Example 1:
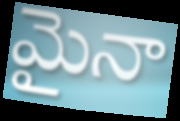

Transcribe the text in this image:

మైనా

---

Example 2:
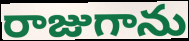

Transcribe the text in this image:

రాజుగాను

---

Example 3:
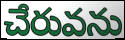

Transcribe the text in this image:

చేరువను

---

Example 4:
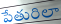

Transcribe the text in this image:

పేతురిలా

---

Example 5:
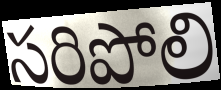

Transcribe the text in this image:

సరిపోలి